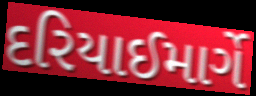
દરિયાઈમાર્ગે